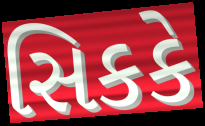
સિકકે